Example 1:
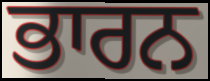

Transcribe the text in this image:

ਭਾਰਨ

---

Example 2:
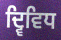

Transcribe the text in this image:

ਦ੍ਵਿਵਿਧ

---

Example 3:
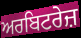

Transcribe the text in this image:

ਅਰਬਿਟਰੇਜ਼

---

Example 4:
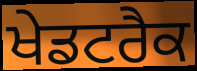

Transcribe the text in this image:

ਖੇਡਟਰੈਕ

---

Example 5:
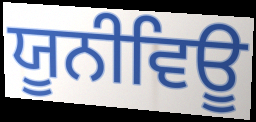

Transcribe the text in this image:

ਯੂਨੀਵਿਊ